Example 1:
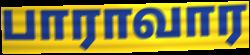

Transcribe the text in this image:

பாராவார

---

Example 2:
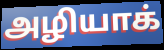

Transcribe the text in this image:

அழியாக்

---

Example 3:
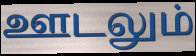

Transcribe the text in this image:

ஊடலும்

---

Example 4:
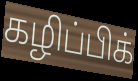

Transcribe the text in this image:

கழிப்பிக்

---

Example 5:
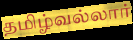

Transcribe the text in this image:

தமிழ்வல்லார்